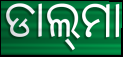
ଡାଲ୍‍ମା